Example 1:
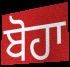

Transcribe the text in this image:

ਬੋਹਾ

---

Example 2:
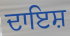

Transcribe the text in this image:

ਦਾਇਸ਼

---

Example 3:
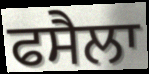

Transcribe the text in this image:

ਫਸੈਲਾ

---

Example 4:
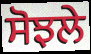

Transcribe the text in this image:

ਸੋਝਲੇ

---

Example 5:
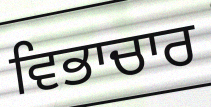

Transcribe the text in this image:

ਵਿਭਾਚਾਰ